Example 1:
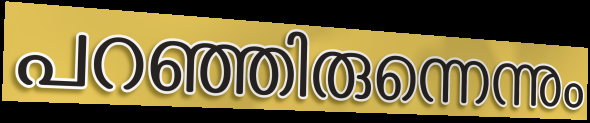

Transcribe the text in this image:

പറഞ്ഞിരുന്നെന്നും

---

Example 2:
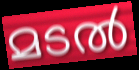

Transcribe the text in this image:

മടൽ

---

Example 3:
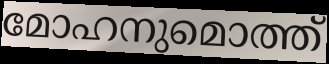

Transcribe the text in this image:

മോഹനുമൊത്ത്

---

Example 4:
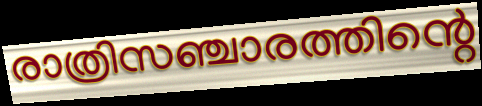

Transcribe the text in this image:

രാത്രിസഞ്ചാരത്തിന്റെ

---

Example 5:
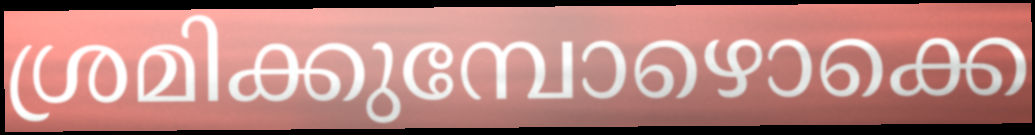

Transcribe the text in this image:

ശ്രമിക്കുമ്പോഴൊക്കെ